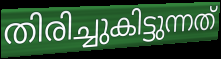
തിരിച്ചുകിട്ടുന്നത്